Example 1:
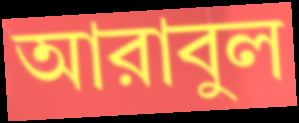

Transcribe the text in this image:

আরাবুল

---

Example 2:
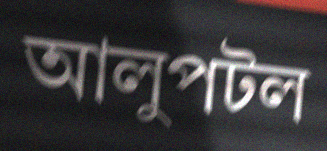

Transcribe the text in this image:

আলুপটল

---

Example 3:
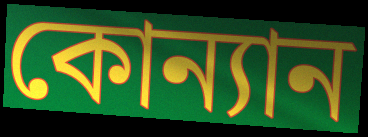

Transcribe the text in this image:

কোন্যান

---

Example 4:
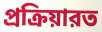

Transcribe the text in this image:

প্রক্রিয়ারত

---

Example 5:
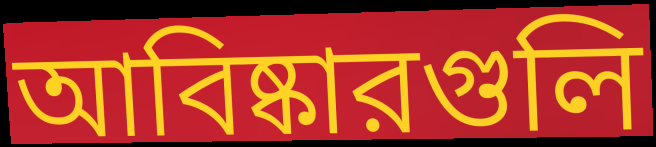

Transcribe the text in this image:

আবিষ্কারগুলি